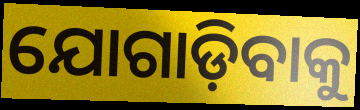
ଯୋଗାଡ଼ିବାକୁ